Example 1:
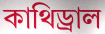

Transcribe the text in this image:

কাথিড্রাল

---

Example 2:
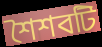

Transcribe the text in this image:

শৈশবটি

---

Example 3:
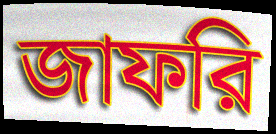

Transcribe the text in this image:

জাফরি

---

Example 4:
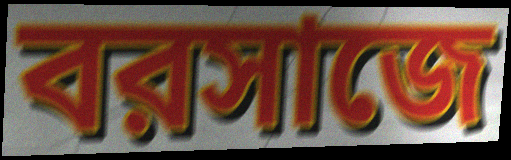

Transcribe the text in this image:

বরসাজে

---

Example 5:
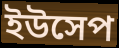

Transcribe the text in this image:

ইউসেপ